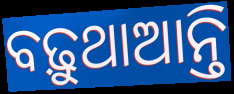
ବଢ଼ୁଥାଆନ୍ତି